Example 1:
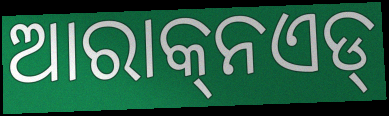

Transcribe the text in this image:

ଆରାକ୍‌ନଏଡ୍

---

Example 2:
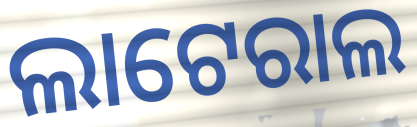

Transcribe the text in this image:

ଲାଟେରାଲ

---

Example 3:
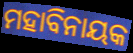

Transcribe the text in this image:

ମହାବିନାୟକ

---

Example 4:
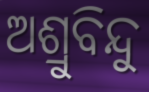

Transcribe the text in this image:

ଅଶ୍ରୁବିନ୍ଦୁ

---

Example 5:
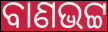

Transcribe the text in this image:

ବାଣଭଟ୍ଟ